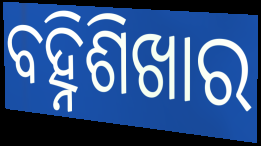
ବହ୍ନିଶିଖାର